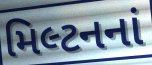
મિલ્ટનનાં